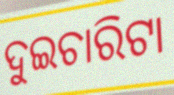
ଦୁଇଚାରିଟା